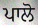
ਪਾਲੋ